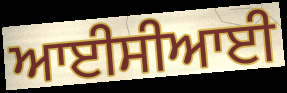
ਆਈਸੀਆਈ